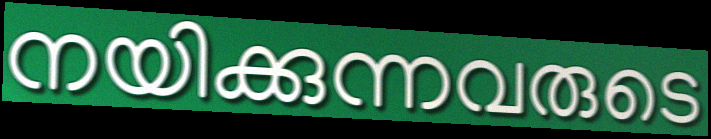
നയിക്കുന്നവരുടെ